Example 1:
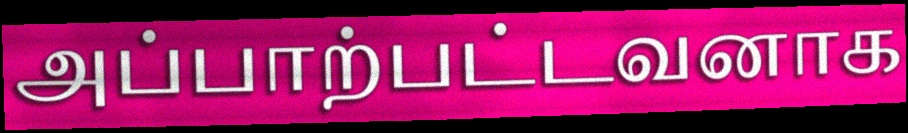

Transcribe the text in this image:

அப்பாற்பட்டவனாக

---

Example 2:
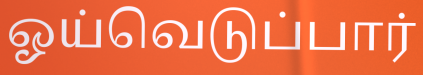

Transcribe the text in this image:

ஓய்வெடுப்பார்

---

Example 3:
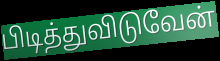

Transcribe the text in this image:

பிடித்துவிடுவேன்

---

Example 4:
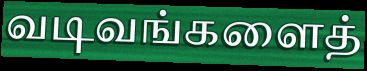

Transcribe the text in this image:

வடிவங்களைத்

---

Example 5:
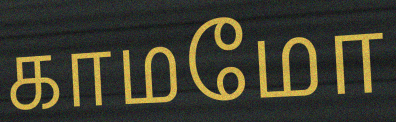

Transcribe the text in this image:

காமமோ